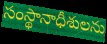
సంస్థానాధీశులను